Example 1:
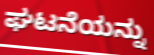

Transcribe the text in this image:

ಘಟನೆಯನ್ನು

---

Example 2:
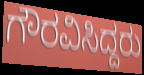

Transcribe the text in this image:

ಗೌರವಿಸಿದ್ದರು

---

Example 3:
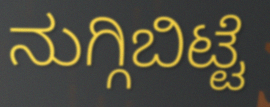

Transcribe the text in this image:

ನುಗ್ಗಿಬಿಟ್ಟೆ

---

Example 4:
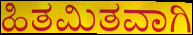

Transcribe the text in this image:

ಹಿತಮಿತವಾಗಿ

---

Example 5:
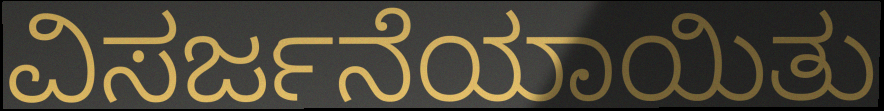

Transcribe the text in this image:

ವಿಸರ್ಜನೆಯಾಯಿತು